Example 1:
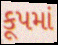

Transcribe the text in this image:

કૂપમાં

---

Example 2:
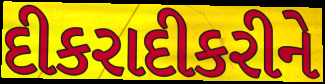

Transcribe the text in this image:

દીકરાદીકરીને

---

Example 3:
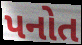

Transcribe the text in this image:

પનોત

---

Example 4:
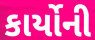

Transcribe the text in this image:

કાર્યોની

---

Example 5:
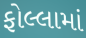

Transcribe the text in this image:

ફોલ્લામાં